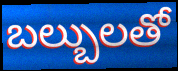
బల్బులతో